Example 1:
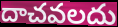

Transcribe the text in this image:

దాచవలదు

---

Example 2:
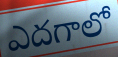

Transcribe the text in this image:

ఎదగాలో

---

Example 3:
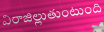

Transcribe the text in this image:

విరాజిల్లుతుంటుంది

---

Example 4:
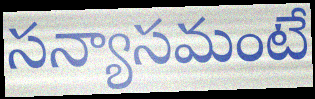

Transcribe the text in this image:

సన్యాసమంటే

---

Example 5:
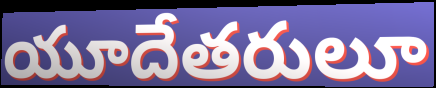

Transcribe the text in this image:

యూదేతరులూ